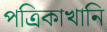
পত্রিকাখানি